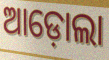
ଆଡ଼ୋଲା